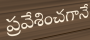
ప్రవేశించగానే